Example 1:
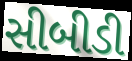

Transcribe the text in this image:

સીબીડી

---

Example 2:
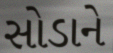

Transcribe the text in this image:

સોડાને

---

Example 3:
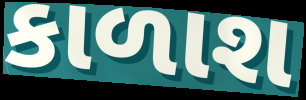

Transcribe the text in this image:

કાળાશ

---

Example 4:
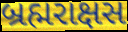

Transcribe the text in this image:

બ્રહ્મરાક્ષસ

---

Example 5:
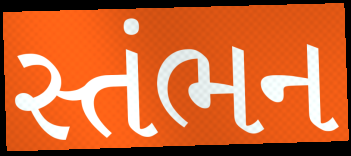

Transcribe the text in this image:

સ્તંભન